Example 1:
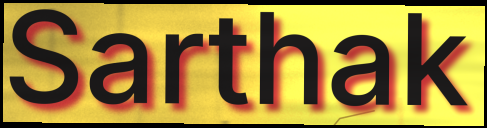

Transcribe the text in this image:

Sarthak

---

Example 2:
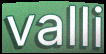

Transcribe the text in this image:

valli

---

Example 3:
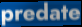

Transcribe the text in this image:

predate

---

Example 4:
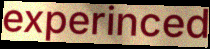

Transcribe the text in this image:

experinced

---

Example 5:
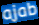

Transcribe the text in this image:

ajab